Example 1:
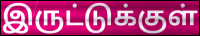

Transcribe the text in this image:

இருட்டுக்குள்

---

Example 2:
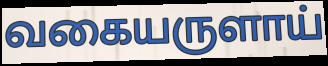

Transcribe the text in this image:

வகையருளாய்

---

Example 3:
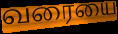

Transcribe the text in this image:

வரையை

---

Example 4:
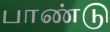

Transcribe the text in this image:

பாண்டு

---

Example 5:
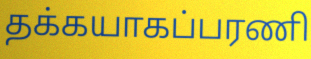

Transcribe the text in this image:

தக்கயாகப்பரணி